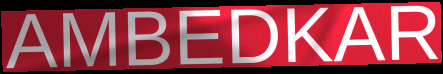
AMBEDKAR